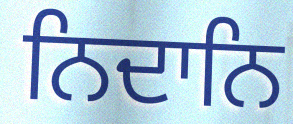
ਨਿਦਾਨਿ